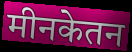
मीनकेतन